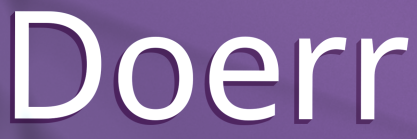
Doerr